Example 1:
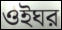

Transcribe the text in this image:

ওইঘর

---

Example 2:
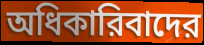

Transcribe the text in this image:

অধিকারিবাদের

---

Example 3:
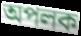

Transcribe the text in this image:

অপলক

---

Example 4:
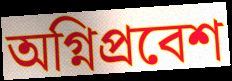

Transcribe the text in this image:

অগ্নিপ্রবেশ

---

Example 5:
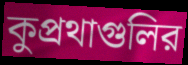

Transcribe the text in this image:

কুপ্রথাগুলির